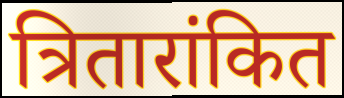
त्रितारांकित